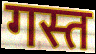
गस्त